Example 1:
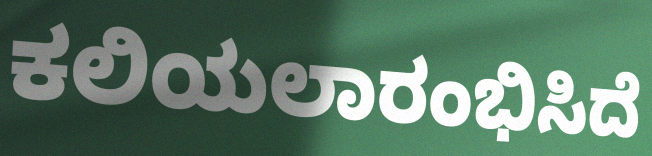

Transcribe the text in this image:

ಕಲಿಯಲಾರಂಭಿಸಿದೆ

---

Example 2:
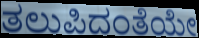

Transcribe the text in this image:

ತಲುಪಿದಂತೆಯೇ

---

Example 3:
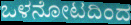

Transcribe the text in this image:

ಒಳನೋಟದಿಂದ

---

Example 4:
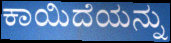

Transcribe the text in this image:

ಕಾಯಿದೆಯನ್ನು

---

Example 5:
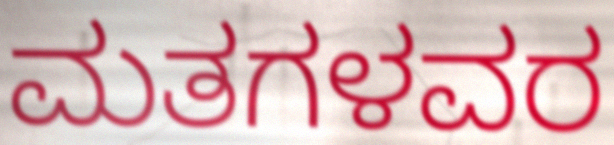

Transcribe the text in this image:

ಮತಗಳವರ